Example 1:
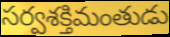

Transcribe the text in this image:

సర్వశక్తిమంతుడు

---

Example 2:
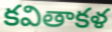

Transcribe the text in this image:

కవితాకళ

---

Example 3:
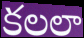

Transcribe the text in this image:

కలలా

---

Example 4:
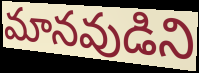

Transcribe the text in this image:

మానవుడిని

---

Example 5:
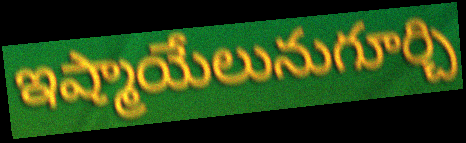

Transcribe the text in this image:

ఇష్మాయేలునుగూర్చి